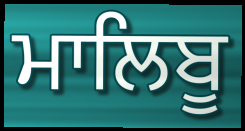
ਮਾਲਿਬੂ